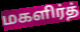
மகளிர்த்